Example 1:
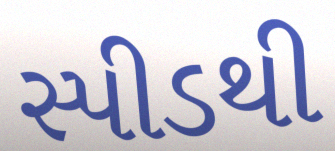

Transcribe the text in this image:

સ્પીડથી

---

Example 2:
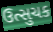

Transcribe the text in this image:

ઉત્સુચક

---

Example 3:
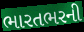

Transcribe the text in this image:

ભારતભરની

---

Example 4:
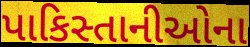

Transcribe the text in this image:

પાકિસ્તાનીઓના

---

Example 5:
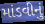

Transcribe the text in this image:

માંડવીનું